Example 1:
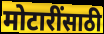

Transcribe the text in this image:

मोटारींसाठी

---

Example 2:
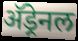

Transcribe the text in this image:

ॲड्रेनल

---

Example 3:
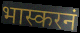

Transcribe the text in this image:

भास्करनं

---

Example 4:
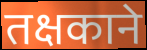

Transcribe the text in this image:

तक्षकाने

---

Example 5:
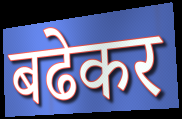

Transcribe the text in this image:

बढेकर